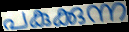
പകുക്കുന്ന